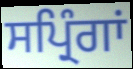
ਸਪ੍ਰਿੰਗਾਂ